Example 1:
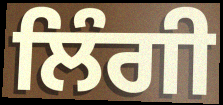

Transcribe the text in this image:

ਲਿੰਗੀ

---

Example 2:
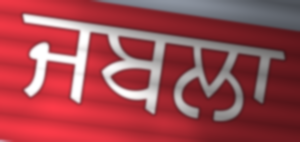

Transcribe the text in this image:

ਜਬਲਾ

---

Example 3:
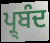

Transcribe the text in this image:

ਪ੍ਰ੍ਬੰਦ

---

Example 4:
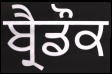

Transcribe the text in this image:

ਬ੍ਰੈਡੌਕ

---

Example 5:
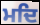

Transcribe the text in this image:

ਮਦਿ